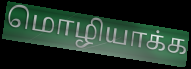
மொழியாக்க